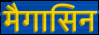
मैगासिन